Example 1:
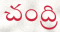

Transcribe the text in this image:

చంద్రి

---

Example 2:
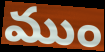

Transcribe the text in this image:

ముం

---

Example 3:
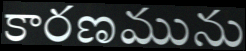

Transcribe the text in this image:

కారణమును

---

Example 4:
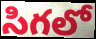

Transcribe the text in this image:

సిగలో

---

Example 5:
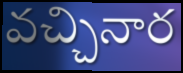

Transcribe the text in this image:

వచ్చినార